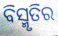
ବିସ୍ମୃତିର